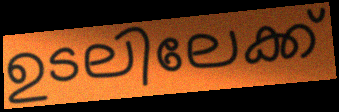
ഉടലിലേക്ക്